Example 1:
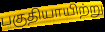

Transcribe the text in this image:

பகுதியாயிற்று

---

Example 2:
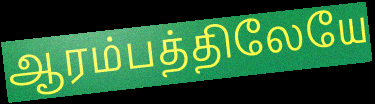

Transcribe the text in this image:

ஆரம்பத்திலேயே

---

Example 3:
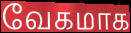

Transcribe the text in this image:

வேகமாக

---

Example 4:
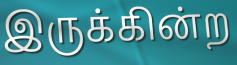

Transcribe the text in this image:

இருக்கின்ற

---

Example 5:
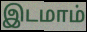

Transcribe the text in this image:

இடமாம்